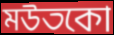
মউতকো